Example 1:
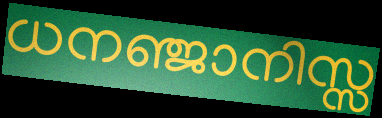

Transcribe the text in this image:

ധനഞ്ജാനിസ്സ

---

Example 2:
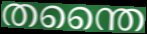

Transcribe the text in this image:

തന്തൈ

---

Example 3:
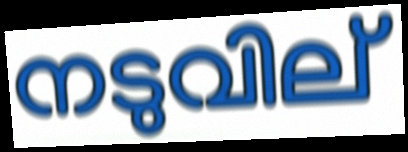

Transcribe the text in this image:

നടുവില്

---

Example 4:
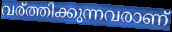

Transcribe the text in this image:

വര്ത്തിക്കുന്നവരാണ്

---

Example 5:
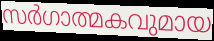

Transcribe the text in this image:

സർഗാത്മകവുമായ